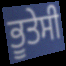
ਭੂਤੇਸੀ